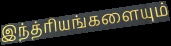
இந்த்ரியங்களையும்